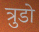
त्रुडो